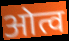
ओत्व